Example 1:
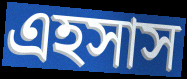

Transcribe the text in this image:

এহসাস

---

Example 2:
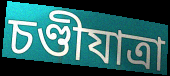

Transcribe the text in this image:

চণ্ডীযাত্রা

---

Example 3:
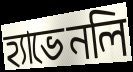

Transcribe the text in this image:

হ্যাভেনলি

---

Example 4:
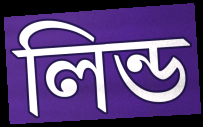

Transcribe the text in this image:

লিন্ড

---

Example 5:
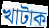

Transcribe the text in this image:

খাটাক